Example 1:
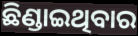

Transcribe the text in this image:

ଛିଣ୍ଡାଇଥିବାର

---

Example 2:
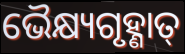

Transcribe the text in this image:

ଭୈକ୍ଷ୍ୟଗୃହ୍ଣାତ୍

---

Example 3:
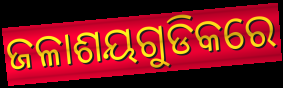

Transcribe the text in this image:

ଜଳାଶୟଗୁଡିକରେ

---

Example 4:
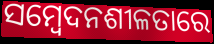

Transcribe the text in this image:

ସମ୍ବେଦନଶୀଳତାରେ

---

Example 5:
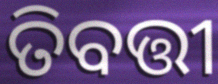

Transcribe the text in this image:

ତିବତ୍ତୀ